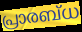
പ്രാരബ്ധ